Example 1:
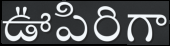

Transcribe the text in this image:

ఊపిరిగా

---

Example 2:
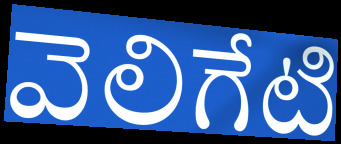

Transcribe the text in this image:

వెలిగేటి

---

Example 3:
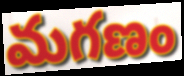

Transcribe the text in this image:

మగణం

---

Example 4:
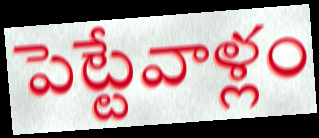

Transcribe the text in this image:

పెట్టేవాళ్లం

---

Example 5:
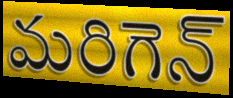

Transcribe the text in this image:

మరిగెన్